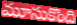
మూసుకొంది